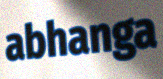
abhanga